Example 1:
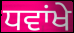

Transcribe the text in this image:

ਧਵਾਂਖੇ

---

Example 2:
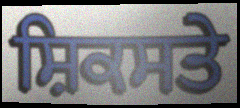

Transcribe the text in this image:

ਸ਼ਿਕਸਤੇ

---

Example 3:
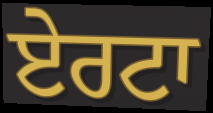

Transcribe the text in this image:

ਏਰਟਾ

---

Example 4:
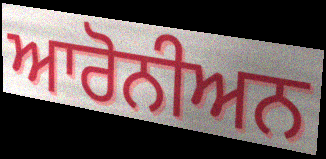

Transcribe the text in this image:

ਆਰੋਨੀਅਨ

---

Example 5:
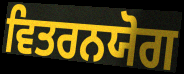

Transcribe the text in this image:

ਵਿਤਰਨਯੋਗ